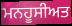
ਮਨਹੂਸੀਅਤ